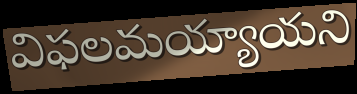
విఫలమయ్యాయని